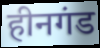
हीनगंड